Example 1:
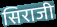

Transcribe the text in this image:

सिराजी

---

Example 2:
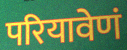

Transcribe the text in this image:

परियावेणं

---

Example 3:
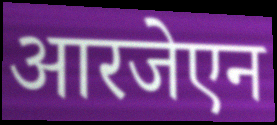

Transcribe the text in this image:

आरजेएन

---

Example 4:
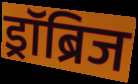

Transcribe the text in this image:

ड्रॉब्रिज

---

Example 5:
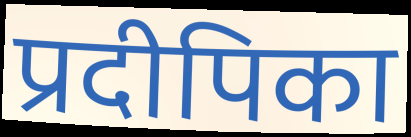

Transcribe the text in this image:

प्रदीपिका